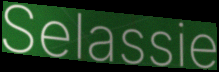
Selassie